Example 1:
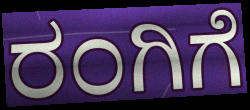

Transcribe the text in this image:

ರಂಗಿಗೆ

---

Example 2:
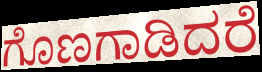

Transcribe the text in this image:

ಗೊಣಗಾಡಿದರೆ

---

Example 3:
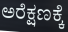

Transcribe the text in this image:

ಅರೆಕ್ಷಣಕ್ಕೆ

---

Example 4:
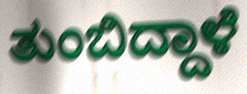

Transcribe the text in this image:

ತುಂಬಿದ್ದಾಳೆ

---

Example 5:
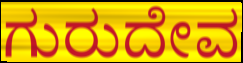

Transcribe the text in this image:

ಗುರುದೇವ